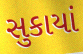
સુકાયાં